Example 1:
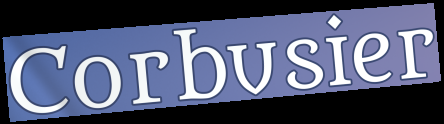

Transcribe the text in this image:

Corbusier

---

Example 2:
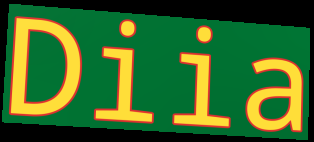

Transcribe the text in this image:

Diia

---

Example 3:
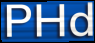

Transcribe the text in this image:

PHd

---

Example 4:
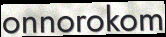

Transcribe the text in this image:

onnorokom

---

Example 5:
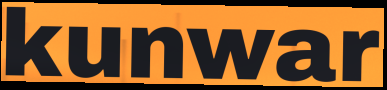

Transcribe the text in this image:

kunwar